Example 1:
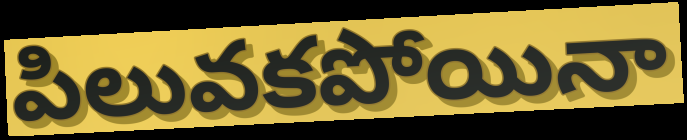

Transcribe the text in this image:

పిలువకపోయినా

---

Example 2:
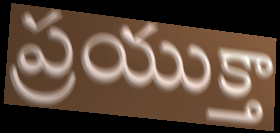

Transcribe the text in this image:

ప్రయుక్తా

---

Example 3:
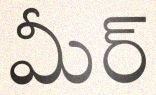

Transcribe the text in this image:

మీర్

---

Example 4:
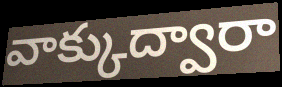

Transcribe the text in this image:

వాక్కుద్వారా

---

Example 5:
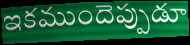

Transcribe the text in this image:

ఇకముందెప్పుడూ